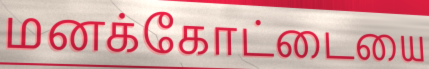
மனக்கோட்டையை